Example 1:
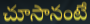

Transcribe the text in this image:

చూసానంటే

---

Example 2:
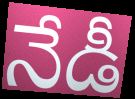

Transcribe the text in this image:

నేడీ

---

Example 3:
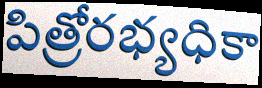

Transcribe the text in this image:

పిత్రోరభ్యధికా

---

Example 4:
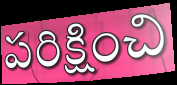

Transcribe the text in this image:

పరిక్షించి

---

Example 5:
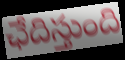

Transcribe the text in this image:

ఛేదిస్తుంది